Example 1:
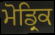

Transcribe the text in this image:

ਮੋਡ੍ਰਿਕ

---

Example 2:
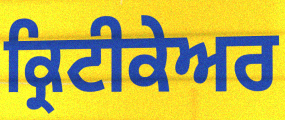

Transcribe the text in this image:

ਕ੍ਰਿਟੀਕੇਅਰ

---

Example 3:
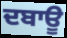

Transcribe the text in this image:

ਦਬਾਊ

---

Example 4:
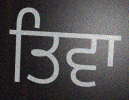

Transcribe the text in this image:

ਤਿਵਾ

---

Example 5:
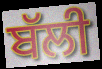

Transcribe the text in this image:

ਬੱਲੀ